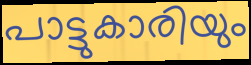
പാട്ടുകാരിയും